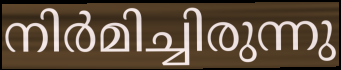
നിർമിച്ചിരുന്നു